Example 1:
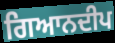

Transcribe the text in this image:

ਗਿਆਨਦੀਪ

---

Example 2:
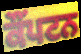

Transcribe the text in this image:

ਕੌਂਪਟਨ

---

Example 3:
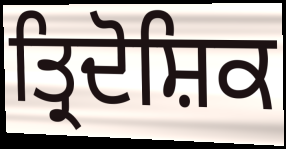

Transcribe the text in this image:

ਤ੍ਰਿਦੋਸ਼ਿਕ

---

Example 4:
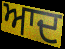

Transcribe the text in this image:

ਆਦ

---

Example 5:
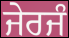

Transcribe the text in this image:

ਜੇਰਜੰ